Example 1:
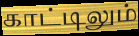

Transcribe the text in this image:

காட்டிலும்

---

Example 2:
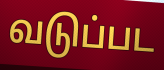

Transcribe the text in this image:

வடுப்பட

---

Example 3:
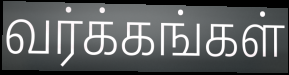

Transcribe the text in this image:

வர்க்கங்கள்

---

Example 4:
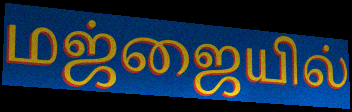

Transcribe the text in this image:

மஜ்ஜையில்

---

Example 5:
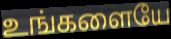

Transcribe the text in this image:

உங்களையே